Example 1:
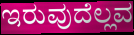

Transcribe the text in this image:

ಇರುವುದೆಲ್ಲವ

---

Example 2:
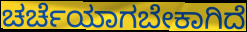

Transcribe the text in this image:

ಚರ್ಚೆಯಾಗಬೇಕಾಗಿದೆ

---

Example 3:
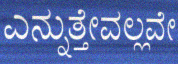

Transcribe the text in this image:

ಎನ್ನುತ್ತೇವಲ್ಲವೇ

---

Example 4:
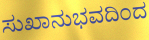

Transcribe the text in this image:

ಸುಖಾನುಭವದಿಂದ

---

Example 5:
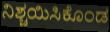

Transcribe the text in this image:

ನಿಶ್ಚಯಿಸಿಕೊಂಡ